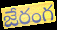
జేరంగ